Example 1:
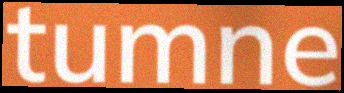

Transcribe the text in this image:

tumne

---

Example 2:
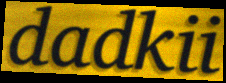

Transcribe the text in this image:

dadkii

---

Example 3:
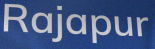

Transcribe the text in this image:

Rajapur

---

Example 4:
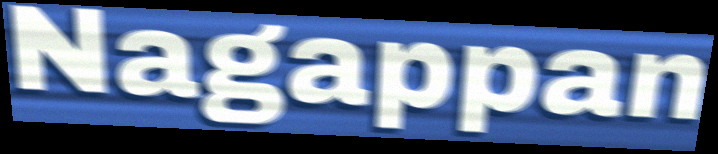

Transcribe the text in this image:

Nagappan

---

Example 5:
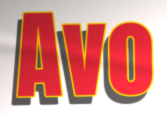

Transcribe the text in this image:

Avo